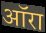
ऑरा